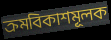
ক্রমবিকাশমূলক